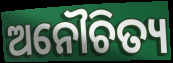
ଅନୌଚିତ୍ୟ